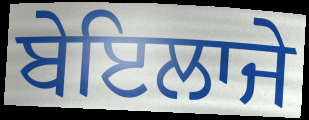
ਬੇਇਲਾਜੇ